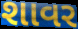
શાવર